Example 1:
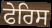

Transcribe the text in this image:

ਫੇਰਿਸ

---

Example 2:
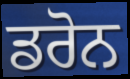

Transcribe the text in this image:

ਡਰੋਨ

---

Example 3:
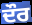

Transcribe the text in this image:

ਦੌਰ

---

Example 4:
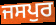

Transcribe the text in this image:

ਜਸਪੁਰ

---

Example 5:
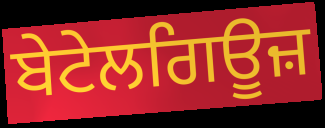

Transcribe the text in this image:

ਬੇਟੇਲਗਿਊਜ਼